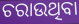
ଚରାଉଥିବା